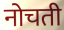
नोचती